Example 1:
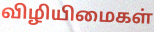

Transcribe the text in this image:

விழியிமைகள்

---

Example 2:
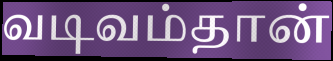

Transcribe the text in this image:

வடிவம்தான்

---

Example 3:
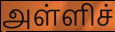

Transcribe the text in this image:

அள்ளிச்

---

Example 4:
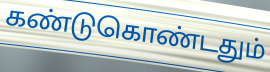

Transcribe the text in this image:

கண்டுகொண்டதும்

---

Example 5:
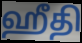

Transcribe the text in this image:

ஹீதி